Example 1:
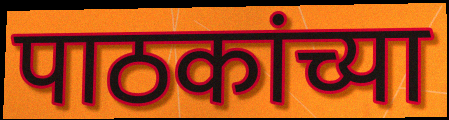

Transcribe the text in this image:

पाठकांच्या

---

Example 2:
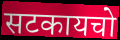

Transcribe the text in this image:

सटकायचो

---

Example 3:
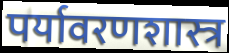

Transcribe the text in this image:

पर्यावरणशास्त्र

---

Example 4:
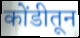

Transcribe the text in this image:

कोंडीतून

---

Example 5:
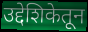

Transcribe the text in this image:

उद्देशिकेतून